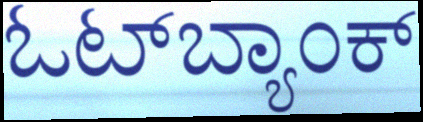
ಓಟ್‌ಬ್ಯಾಂಕ್